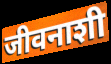
जीवनाशी